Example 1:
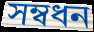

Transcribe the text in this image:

সম্বধন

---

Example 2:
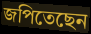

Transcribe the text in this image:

জপিতেছেন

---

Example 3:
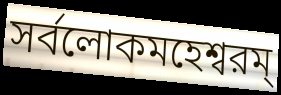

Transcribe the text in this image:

সর্বলোকমহেশ্বরম্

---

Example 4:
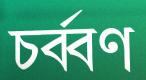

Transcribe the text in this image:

চর্ব্বণ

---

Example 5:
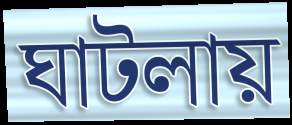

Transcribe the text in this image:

ঘাটলায়